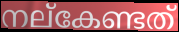
നല്കേണ്ടത്